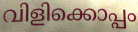
വിളിക്കൊപ്പം